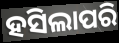
ହସିଲାପରି